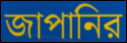
জাপানির